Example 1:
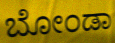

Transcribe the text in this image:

ಬೋಂಡಾ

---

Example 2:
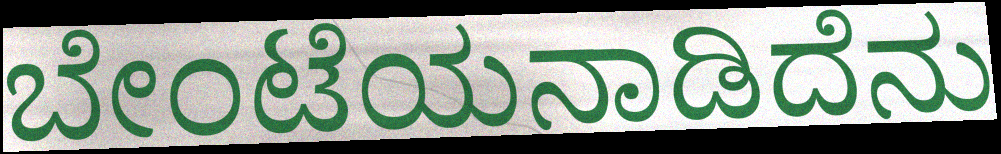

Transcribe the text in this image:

ಬೇಂಟೆಯನಾಡಿದೆನು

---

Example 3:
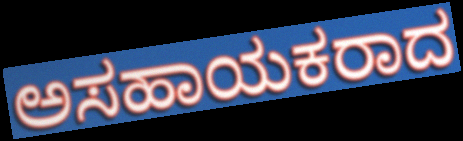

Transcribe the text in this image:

ಅಸಹಾಯಕರಾದ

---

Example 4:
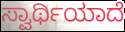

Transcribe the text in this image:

ಸ್ವಾರ್ಥಿಯಾದೆ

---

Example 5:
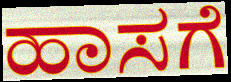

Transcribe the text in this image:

ಹಾಸಗೆ